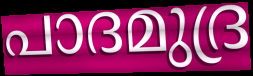
പാദമുദ്ര